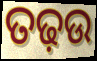
ତଢ଼ଉ